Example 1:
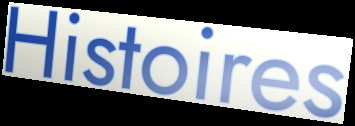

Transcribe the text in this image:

Histoires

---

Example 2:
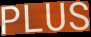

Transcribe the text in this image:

PLUS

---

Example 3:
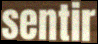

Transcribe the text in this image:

sentir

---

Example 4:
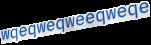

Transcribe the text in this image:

wqeqweqweeqweqe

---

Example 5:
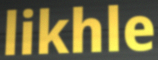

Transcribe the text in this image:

likhle